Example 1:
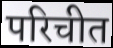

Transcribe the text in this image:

परिचीत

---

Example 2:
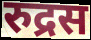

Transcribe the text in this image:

रुद्रस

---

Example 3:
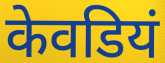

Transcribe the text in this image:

केवडियं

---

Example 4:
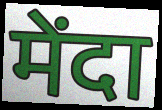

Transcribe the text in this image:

मेंदा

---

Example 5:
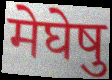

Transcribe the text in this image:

मेघेषु